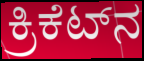
ಕ್ರಿಕೆಟ್‌ನ